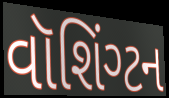
વૉશિંગ્ટન